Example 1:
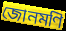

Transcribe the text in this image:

জোনমণি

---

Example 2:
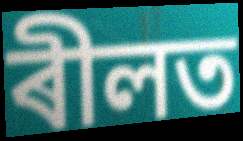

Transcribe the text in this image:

ৰীলত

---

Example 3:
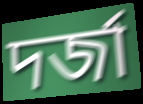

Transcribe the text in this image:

দৰ্জা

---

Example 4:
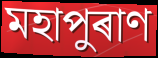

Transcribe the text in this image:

মহাপুৰাণ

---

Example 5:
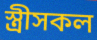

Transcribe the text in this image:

স্ত্ৰীসকল